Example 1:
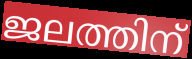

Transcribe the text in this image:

ജലത്തിന്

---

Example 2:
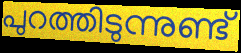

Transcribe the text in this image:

പുറത്തിടുന്നുണ്ട്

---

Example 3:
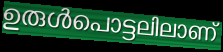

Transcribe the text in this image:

ഉരുൾപൊട്ടലിലാണ്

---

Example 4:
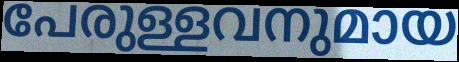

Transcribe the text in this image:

പേരുള്ളവനുമായ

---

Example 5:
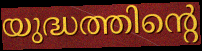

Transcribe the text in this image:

യുദ്ധത്തിന്റെ